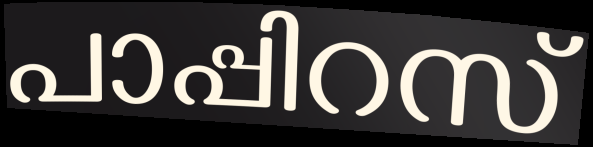
പാപ്പിറസ്